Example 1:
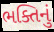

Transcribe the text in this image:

ભક્તિનું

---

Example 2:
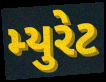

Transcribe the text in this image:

મ્યુરેટ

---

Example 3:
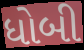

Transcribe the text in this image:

ધોબી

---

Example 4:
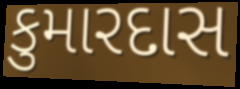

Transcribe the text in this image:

કુમારદાસ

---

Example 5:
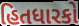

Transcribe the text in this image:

હિતધારકો